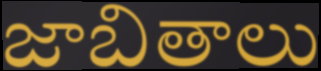
జాబితాలు